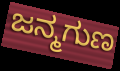
ಜನ್ಮಗುಣ